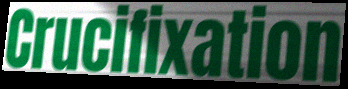
Crucifixation